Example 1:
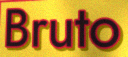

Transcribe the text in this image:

Bruto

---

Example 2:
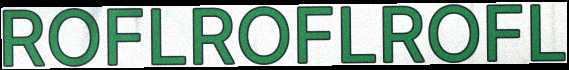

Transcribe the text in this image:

ROFLROFLROFL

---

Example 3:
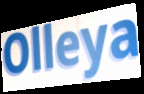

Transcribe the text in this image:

Olleya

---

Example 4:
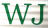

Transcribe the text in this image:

WJ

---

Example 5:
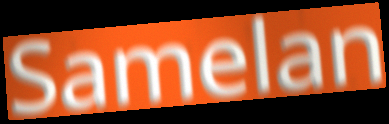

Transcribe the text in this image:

Samelan